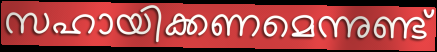
സഹായിക്കണമെന്നുണ്ട്